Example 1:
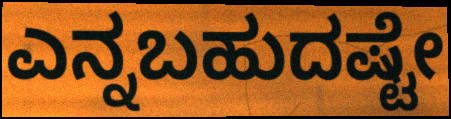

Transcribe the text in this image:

ಎನ್ನಬಹುದಷ್ಟೇ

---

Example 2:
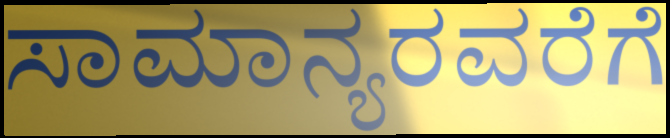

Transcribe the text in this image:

ಸಾಮಾನ್ಯರವರೆಗೆ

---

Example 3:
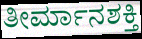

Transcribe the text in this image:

ತೀರ್ಮಾನಶಕ್ತಿ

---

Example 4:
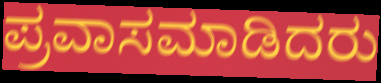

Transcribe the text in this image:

ಪ್ರವಾಸಮಾಡಿದರು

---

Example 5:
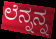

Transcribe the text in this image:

ಲೆನ್ನನ್ನ